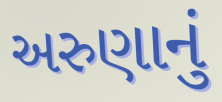
અરુણાનું